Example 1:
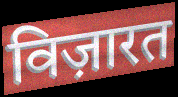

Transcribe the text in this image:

विज़ारत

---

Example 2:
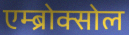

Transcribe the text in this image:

एम्ब्रोक्सोल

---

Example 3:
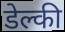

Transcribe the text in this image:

डेल्की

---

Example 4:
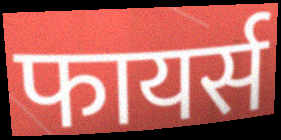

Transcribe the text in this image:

फायर्स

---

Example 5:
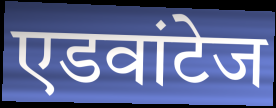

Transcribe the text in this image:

एडवांटेज